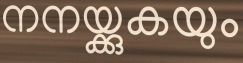
നനയ്ക്കുകയും